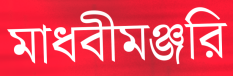
মাধবীমঞ্জরি